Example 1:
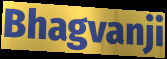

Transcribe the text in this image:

Bhagvanji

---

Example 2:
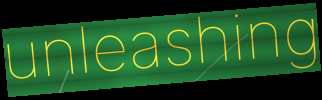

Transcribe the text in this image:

unleashing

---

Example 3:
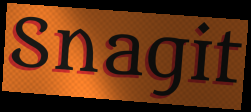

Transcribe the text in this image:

Snagit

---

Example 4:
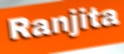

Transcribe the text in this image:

Ranjita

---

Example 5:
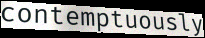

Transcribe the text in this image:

contemptuously